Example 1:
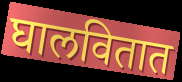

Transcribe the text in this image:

घालवितात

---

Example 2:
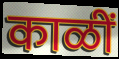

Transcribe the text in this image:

काळीं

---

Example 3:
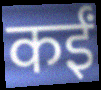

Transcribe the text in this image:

कईं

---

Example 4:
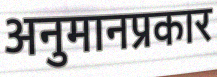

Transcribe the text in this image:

अनुमानप्रकार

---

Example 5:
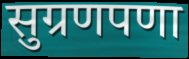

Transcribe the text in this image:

सुग्रणपणा